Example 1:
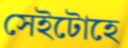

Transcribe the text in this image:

সেইটোহে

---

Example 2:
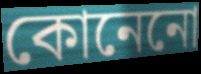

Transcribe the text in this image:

কোনেনো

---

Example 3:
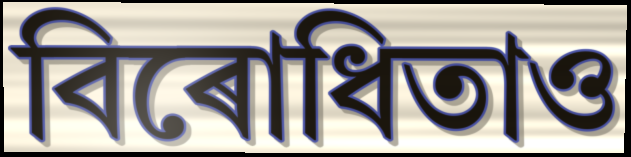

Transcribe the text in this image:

বিৰোধিতাও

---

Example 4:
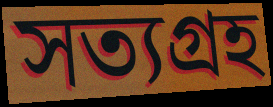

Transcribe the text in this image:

সত্যগ্ৰহ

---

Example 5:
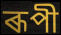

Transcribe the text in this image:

ৰূপী